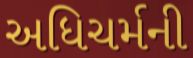
અધિચર્મની